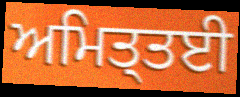
ਅਮਿਤ੍ਤਈ